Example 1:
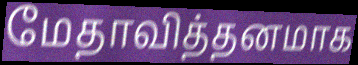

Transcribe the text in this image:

மேதாவித்தனமாக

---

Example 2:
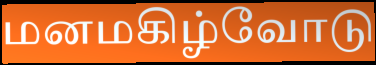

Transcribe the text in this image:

மனமகிழ்வோடு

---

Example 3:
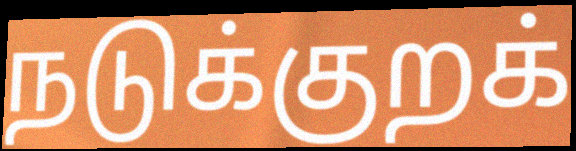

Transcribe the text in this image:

நடுக்குறக்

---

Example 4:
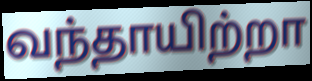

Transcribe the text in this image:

வந்தாயிற்றா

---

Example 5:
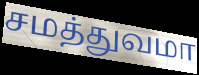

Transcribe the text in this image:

சமத்துவமா